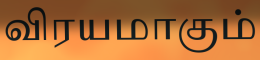
விரயமாகும்